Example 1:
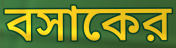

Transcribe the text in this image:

বসাকের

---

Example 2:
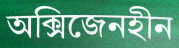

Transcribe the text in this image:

অক্সিজেনহীন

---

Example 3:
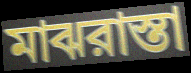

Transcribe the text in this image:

মাঝরাস্তা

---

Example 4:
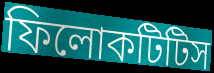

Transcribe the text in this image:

ফিলোকটিটিস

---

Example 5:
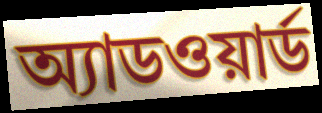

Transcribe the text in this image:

অ্যাডওয়ার্ড